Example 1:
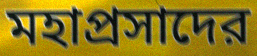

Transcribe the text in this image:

মহাপ্রসাদের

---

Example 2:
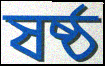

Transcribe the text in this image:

ষষ্ঠ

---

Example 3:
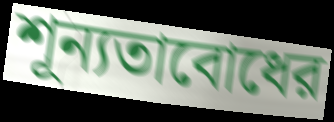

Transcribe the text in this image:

শূন্যতাবোধের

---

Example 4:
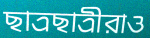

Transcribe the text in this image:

ছাত্রছাত্রীরাও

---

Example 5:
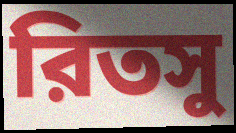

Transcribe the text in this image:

রিতসু